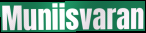
Muniisvaran